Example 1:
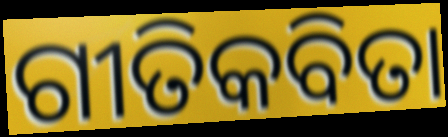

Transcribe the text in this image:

ଗୀତିକବିତା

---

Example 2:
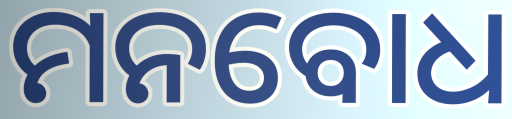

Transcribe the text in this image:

ମନବୋଧ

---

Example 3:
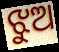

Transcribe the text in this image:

ଝୁଅ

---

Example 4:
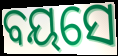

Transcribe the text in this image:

ବୟସେ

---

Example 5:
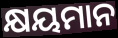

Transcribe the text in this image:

କ୍ଷୟମାନ